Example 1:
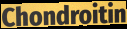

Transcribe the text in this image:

Chondroitin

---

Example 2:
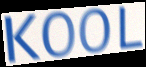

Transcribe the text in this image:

KOOL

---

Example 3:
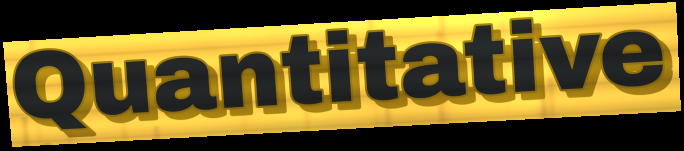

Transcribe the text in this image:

Quantitative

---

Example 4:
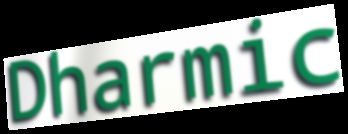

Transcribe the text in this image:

Dharmic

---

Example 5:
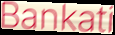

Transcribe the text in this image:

Bankati